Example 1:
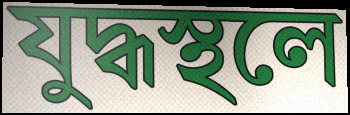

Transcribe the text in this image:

যুদ্ধস্থলে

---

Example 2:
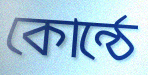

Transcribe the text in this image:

কোন্ঠে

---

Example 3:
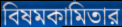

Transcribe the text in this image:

বিষমকামিতার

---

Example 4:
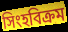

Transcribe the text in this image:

সিংহবিক্রম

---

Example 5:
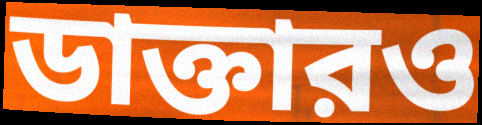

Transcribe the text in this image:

ডাক্তারও